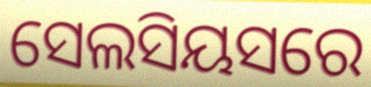
ସେଲସିୟସରେ